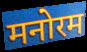
मनोरम